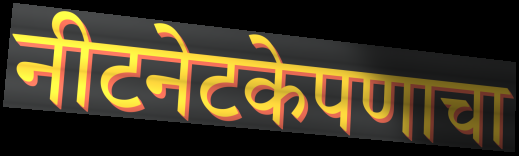
नीटनेटकेपणाचा